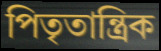
পিতৃতান্ত্ৰিক